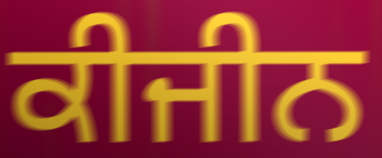
ਕੀਜੀਨ